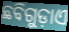
ଛବିଗୁଡ଼ାଏ